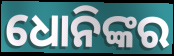
ଧୋନିଙ୍କର